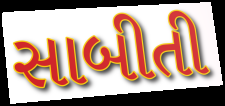
સાબીતી